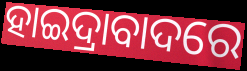
ହାଇଦ୍ରାବାଦରେ